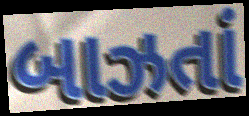
બાઝતાં